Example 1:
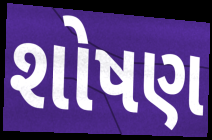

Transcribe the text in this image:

શોષણ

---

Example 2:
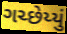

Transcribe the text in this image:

ગચ્છેય્યું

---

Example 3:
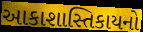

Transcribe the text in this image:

આકાશાસ્તિકાયનો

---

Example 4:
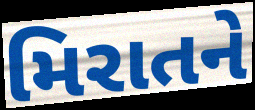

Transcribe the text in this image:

મિરાતને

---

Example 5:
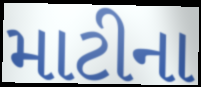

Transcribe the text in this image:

માટીના